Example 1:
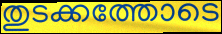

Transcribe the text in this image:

തുടക്കത്തോടെ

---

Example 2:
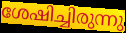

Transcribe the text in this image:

ശേഷിച്ചിരുന്നു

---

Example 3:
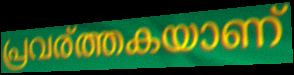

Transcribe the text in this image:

പ്രവര്ത്തകയാണ്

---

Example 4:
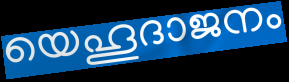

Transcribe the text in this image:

യെഹൂദാജനം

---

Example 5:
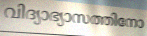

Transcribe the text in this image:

വിദ്യാഭ്യാസത്തിനോ